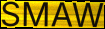
SMAW